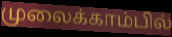
முலைக்காம்பில்